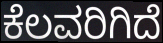
ಕೆಲವರಿಗಿದೆ